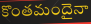
కొంతమందైనా